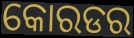
କୋରଡର